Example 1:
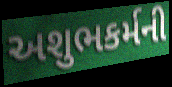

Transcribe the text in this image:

અશુભકર્મની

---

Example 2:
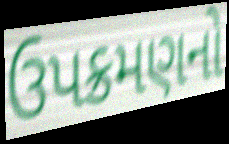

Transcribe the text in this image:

ઉપક્રમણનો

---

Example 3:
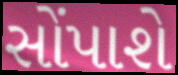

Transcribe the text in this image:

સોંપાશે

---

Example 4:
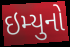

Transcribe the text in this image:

ઇમ્યુનો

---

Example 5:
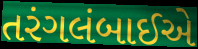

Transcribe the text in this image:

તરંગલંબાઈએ